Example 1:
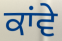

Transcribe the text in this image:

ਕਾਂਵੇ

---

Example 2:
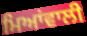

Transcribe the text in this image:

ਮਿਆਂਵਾਲੀ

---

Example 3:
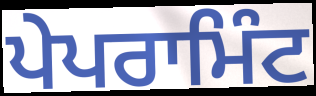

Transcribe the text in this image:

ਪੇਪਰਾਮਿੰਟ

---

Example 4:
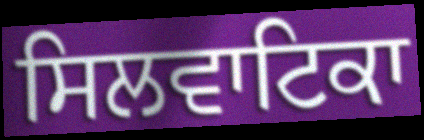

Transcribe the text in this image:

ਸਿਲਵਾਟਿਕਾ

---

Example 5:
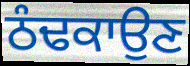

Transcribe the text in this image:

ਠੰਢਕਾਉਣ